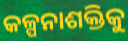
କଳ୍ପନାଶକ୍ତିକୁ